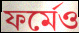
ফর্মেও